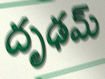
దృఢమ్